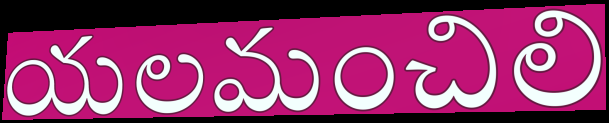
యలమంచిలి